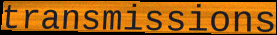
transmissions